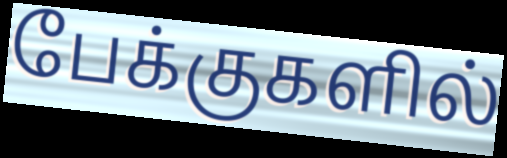
பேக்குகளில்